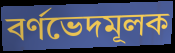
বর্ণভেদমূলক